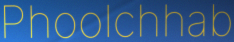
Phoolchhab